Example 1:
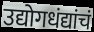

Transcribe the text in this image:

उद्योगधंद्यांचं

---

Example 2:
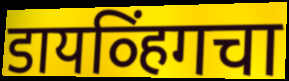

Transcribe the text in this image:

डायव्हिंगचा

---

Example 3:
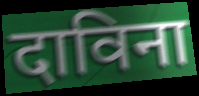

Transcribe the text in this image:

दाविना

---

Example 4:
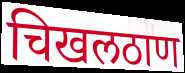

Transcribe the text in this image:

चिखलठाण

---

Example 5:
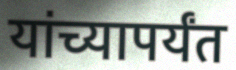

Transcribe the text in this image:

यांच्यापर्यंत